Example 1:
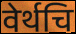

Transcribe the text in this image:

वेर्थचि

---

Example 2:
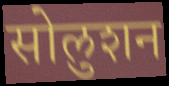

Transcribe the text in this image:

सोलुशन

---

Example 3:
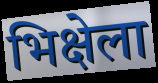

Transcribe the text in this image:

भिक्षेला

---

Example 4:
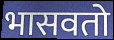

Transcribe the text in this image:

भासवतो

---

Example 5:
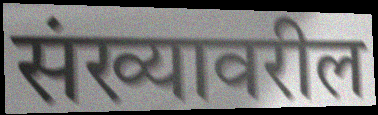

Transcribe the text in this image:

संख्यावरील